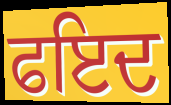
ਫਇਦ